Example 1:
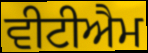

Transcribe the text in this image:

ਵੀਟੀਐਮ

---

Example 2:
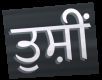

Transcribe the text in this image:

ਤੁਸ਼ੀਂ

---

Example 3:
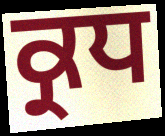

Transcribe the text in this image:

ਕ੍ਰਧ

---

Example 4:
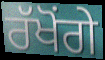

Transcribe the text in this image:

ਰੱਖੋਂਗੇ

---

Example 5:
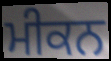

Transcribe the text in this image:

ਮੀਕਨ